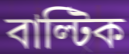
বাল্টিক